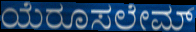
ಯೆರೂಸಲೇಮ್